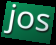
jos